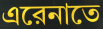
এরেনাতে